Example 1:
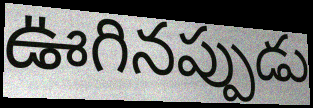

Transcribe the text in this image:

ఊగినప్పుడు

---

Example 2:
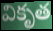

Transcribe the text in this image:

వికృత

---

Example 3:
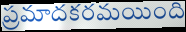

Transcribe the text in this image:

ప్రమాదకరమయింది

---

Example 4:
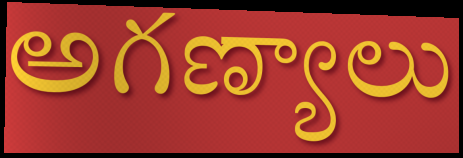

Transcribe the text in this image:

అగణ్యాలు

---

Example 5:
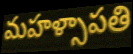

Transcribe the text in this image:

మహళ్సాపతి